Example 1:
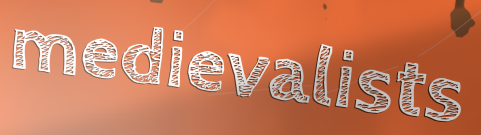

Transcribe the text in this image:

medievalists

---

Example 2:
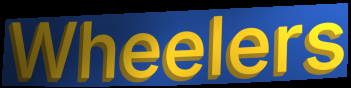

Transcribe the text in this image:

Wheelers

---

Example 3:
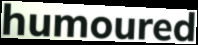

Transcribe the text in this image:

humoured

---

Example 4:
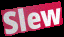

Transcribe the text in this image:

Slew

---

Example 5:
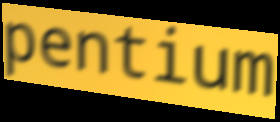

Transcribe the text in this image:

pentium